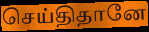
செய்திதானே